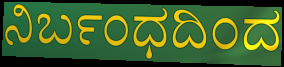
ನಿರ್ಬಂಧದಿಂದ